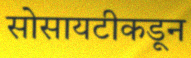
सोसायटीकडून